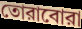
তোরাবোরা